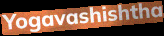
Yogavashishtha